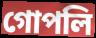
গোপলি